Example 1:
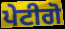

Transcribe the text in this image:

ਪੇਟੀਗੋ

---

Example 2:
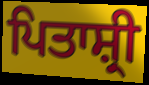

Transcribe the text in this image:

ਪਿਤਾਸ਼੍ਰੀ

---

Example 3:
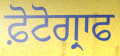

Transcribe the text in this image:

ਫ਼ੋਟੋਗ੍ਰਾਫ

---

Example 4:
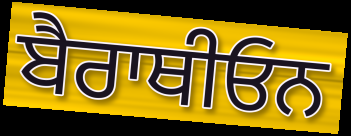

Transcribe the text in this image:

ਬੈਰਾਥੀਓਨ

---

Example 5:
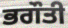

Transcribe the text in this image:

ਭਗੌਤੀ